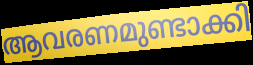
ആവരണമുണ്ടാക്കി